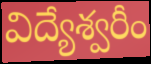
విద్యేశ్వరీం